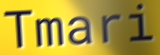
Tmari